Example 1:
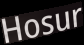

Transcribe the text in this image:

Hosur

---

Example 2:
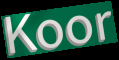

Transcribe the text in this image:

Koor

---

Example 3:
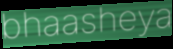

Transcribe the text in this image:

bhaasheya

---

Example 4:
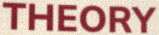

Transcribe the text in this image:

THEORY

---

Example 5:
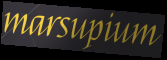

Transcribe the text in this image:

marsupium